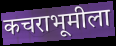
कचराभूमीला